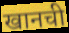
खानची